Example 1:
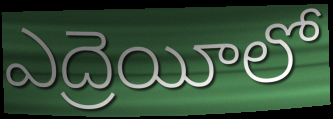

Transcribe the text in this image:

ఎద్రెయీలో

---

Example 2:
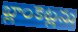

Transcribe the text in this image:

బ్లాంకెట్లను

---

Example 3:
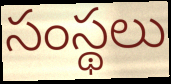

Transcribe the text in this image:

సంస్థలు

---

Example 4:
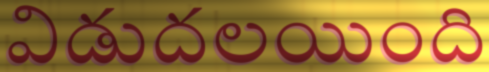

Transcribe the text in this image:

విడుదలయింది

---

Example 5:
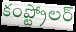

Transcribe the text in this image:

కంప్ట్రోలర్